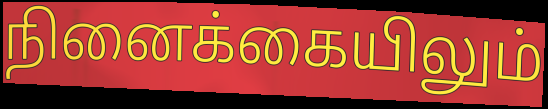
நினைக்கையிலும்